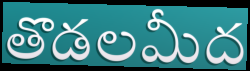
తొడలమీద